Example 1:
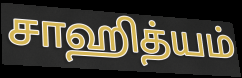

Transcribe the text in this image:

சாஹித்யம்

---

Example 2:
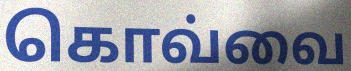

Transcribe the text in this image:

கொவ்வை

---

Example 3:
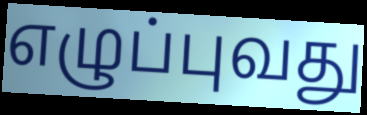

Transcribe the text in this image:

எழுப்புவது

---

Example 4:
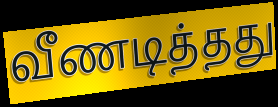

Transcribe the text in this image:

வீணடித்தது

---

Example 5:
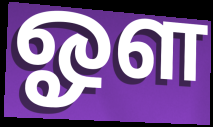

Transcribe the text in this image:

ஓள